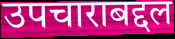
उपचाराबद्दल